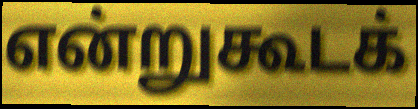
என்றுகூடக்